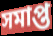
সমাপ্ত